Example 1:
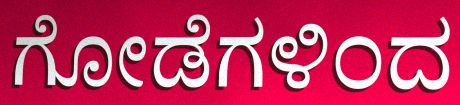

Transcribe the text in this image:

ಗೋಡೆಗಳಿಂದ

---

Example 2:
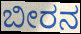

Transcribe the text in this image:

ಬೀರನ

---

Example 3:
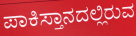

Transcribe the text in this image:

ಪಾಕಿಸ್ತಾನದಲ್ಲಿರುವ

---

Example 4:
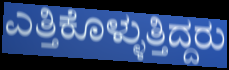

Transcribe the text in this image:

ಎತ್ತಿಕೊಳ್ಳುತ್ತಿದ್ದರು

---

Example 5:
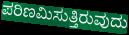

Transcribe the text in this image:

ಪರಿಣಮಿಸುತ್ತಿರುವುದು